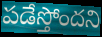
పడేస్తోందని